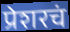
प्रेशरचं